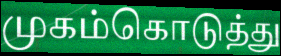
முகம்கொடுத்து